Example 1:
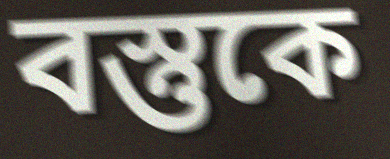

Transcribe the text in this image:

বস্তুকে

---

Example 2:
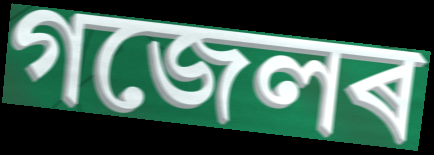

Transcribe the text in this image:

গজেলৰ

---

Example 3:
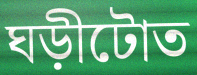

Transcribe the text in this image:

ঘড়ীটোত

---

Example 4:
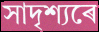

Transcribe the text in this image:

সাদৃশ্যৰে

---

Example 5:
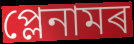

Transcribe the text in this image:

প্লেনামৰ